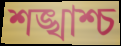
শঙ্খাশ্চ